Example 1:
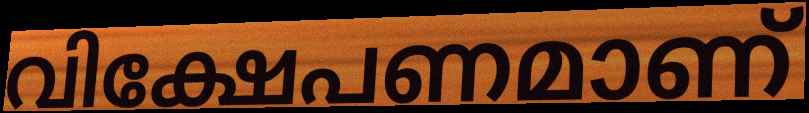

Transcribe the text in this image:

വിക്ഷേപണമാണ്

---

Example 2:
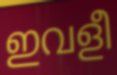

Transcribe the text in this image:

ഇവളീ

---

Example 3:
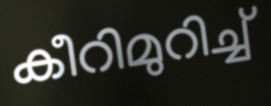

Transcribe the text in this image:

കീറിമുറിച്ച്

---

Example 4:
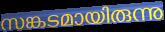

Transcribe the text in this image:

സങ്കടമായിരുന്നു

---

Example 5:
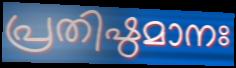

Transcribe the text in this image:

പ്രതിഷ്ഠമാനഃ